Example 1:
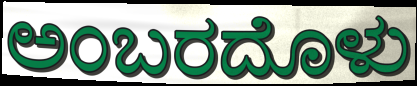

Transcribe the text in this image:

ಅಂಬರದೊಳು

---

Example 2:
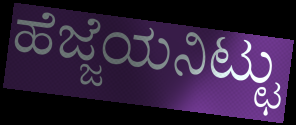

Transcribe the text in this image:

ಹೆಜ್ಜೆಯನಿಟ್ಟು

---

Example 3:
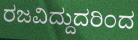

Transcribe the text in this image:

ರಜವಿದ್ದುದರಿಂದ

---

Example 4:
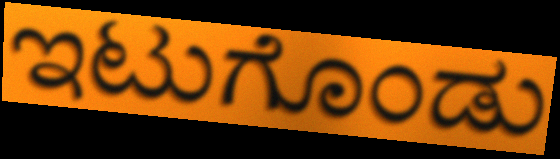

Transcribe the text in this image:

ಇಟುಗೊಂಡು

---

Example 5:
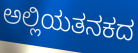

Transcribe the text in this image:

ಅಲ್ಲಿಯತನಕದ